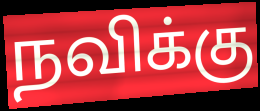
நவிக்கு